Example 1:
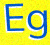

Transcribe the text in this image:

Eg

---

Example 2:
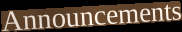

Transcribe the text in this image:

Announcements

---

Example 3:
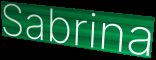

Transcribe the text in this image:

Sabrina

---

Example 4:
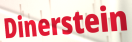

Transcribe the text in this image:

Dinerstein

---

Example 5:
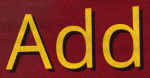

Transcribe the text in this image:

Add